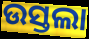
ଉସ୍ତଲା